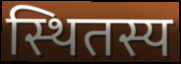
स्थितस्य